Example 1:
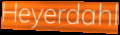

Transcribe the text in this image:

Heyerdahl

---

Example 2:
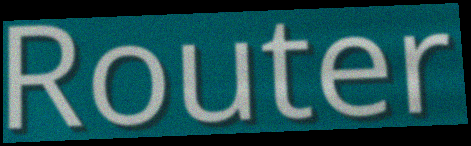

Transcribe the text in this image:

Router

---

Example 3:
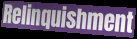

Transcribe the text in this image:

Relinquishment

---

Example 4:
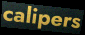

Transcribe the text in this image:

calipers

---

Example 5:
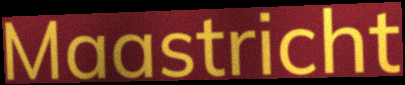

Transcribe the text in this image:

Maastricht